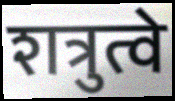
शत्रुत्वे